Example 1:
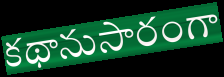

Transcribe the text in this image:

కథానుసారంగా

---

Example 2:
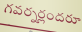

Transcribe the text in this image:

గవర్నర్లందరూ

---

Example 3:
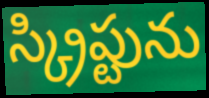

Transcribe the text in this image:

స్క్రిప్టును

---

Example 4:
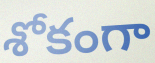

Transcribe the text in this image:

శోకంగా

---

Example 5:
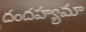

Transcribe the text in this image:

దందహ్యమా